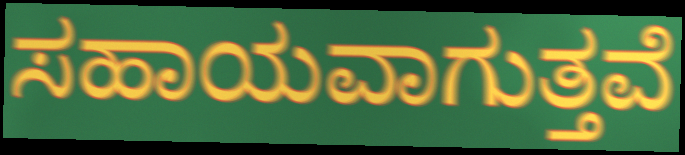
ಸಹಾಯವಾಗುತ್ತವೆ